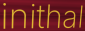
inithal